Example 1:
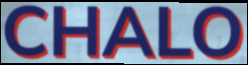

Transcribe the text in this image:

CHALO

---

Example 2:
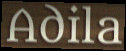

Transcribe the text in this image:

Adila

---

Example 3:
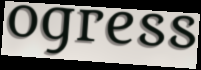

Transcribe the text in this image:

ogress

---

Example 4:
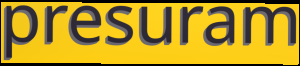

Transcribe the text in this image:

presuram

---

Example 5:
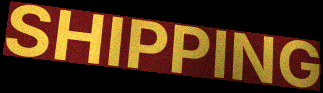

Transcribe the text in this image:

SHIPPING